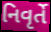
નિવૃર્તે